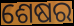
ଶେଷର